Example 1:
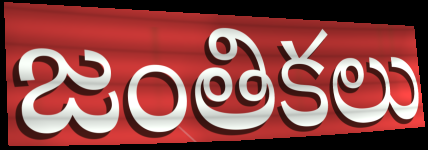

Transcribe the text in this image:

జంతికలు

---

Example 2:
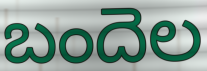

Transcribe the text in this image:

బందెల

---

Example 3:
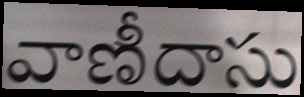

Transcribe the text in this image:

వాణీదాసు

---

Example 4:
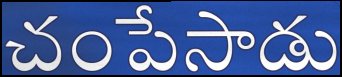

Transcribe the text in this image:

చంపేసాడు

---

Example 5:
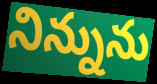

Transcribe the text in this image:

నిన్నును